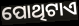
ପୋଥିଟାଏ